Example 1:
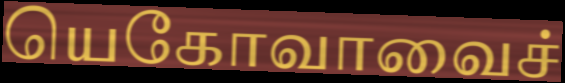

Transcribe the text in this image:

யெகோவாவைச்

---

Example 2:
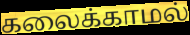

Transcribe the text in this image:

கலைக்காமல்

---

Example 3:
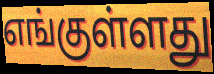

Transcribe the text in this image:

எங்குள்ளது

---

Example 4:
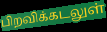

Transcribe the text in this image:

பிறவிக்கடலுள்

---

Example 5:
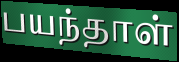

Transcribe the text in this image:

பயந்தாள்